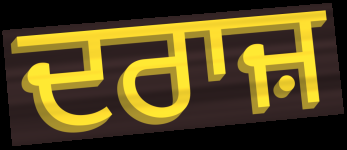
ਦਰਾਜ਼